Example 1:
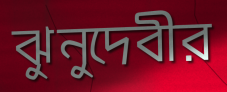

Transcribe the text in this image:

ঝুনুদেবীর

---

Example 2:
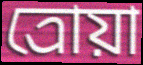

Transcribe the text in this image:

ত্রোয়া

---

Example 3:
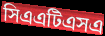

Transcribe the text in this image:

সিএএটিএসএ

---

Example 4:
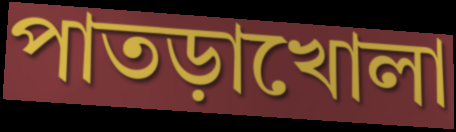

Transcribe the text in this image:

পাতড়াখোলা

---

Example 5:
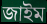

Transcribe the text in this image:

জাইম